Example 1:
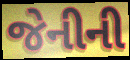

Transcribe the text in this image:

જેનીની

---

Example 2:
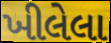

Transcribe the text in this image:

ખીલેલા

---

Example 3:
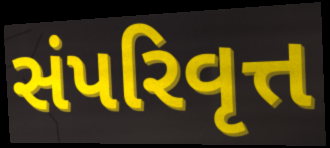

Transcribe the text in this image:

સંપરિવૃત્ત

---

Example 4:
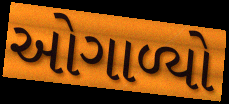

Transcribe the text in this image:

ઓગાળ્યો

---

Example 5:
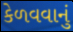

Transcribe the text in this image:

કેળવવાનું